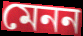
মেনন